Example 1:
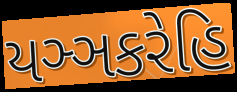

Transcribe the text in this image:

યઞ્ઞકરેહિ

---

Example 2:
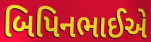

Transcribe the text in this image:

બિપિનભાઈએ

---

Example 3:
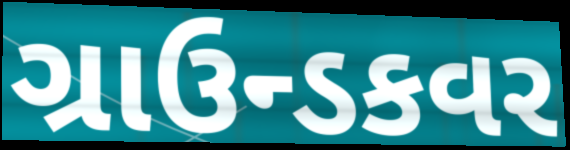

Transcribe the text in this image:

ગ્રાઉન્ડકવર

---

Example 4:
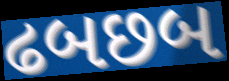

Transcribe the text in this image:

ઢબછબ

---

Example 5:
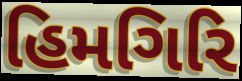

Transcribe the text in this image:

હિમગિરિ